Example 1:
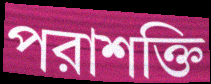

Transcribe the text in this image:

পরাশক্তি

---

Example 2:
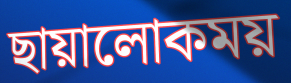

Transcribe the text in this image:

ছায়ালোকময়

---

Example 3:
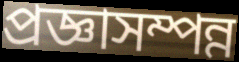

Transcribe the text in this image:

প্রজ্ঞাসম্পন্ন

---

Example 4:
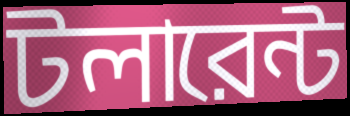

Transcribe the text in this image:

টলারেন্ট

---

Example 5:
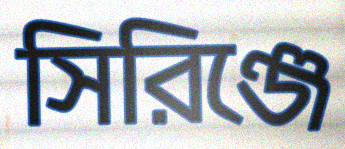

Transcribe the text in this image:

সিরিঞ্জে